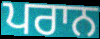
ਪਰਾਨ